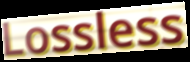
Lossless